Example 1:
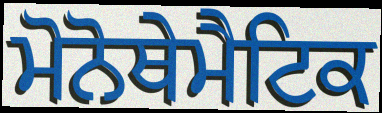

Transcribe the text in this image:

ਮੋਨੋਥੇਮੈਟਿਕ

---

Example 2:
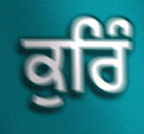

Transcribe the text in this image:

ਕੁਰਿੰ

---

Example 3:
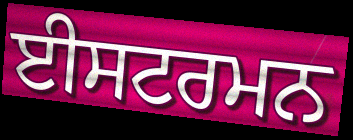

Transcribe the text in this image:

ਈਸਟਰਮਨ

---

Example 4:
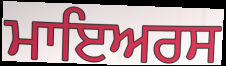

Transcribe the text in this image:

ਮਾਇਅਰਸ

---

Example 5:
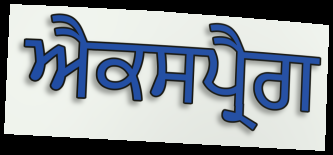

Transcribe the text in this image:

ਐਕਸਪ੍ਰੈਗ